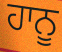
ਹਾਨੂ